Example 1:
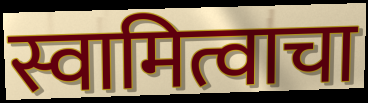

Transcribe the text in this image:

स्वामित्वाचा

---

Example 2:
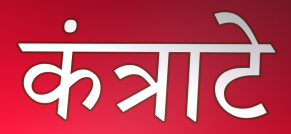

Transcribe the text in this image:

कंत्राटे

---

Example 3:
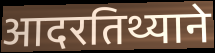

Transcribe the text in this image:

आदरतिथ्याने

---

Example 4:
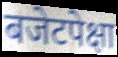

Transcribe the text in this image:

बजेटपेक्षा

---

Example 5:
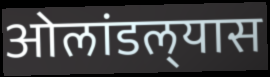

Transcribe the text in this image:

ओलांडल्यास